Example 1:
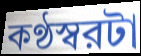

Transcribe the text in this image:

কণ্ঠস্বরটা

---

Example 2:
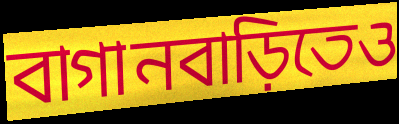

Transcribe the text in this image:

বাগানবাড়িতেও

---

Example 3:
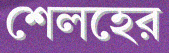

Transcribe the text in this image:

শেলহের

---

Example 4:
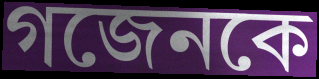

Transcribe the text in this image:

গজেনকে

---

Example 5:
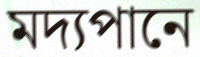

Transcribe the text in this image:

মদ্যপানে